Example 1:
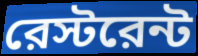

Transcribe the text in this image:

রেস্টরেন্ট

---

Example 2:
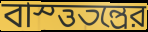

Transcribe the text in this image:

বাস্ত্ততন্ত্রের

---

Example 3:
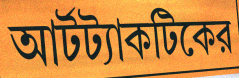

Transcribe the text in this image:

আর্টট্যাকটিকের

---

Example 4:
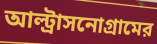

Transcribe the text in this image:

আল্ট্রাসনোগ্রামের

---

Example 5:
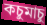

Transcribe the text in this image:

কচুমাচু